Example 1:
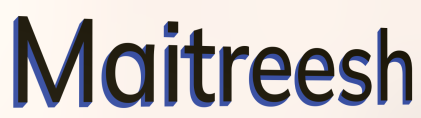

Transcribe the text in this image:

Maitreesh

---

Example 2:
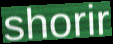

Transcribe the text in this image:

shorir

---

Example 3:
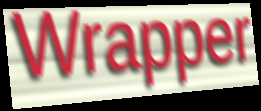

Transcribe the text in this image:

Wrapper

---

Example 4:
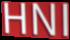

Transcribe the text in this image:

HNI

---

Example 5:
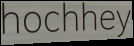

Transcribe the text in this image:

hochhey